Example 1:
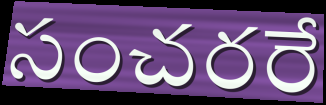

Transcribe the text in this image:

సంచరరే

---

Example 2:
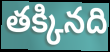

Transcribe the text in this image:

తక్కినది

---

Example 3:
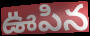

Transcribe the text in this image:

ఊపిన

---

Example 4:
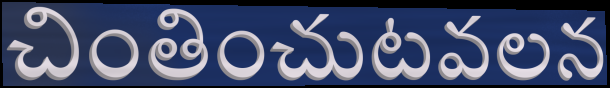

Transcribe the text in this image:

చింతించుటవలన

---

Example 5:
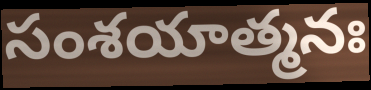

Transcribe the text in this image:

సంశయాత్మనః